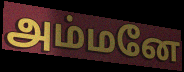
அம்மனே